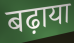
बढ़ाया